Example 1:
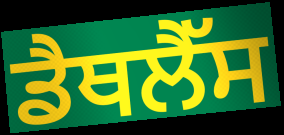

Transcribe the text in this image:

ਡੈਥਲੈੱਸ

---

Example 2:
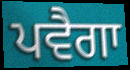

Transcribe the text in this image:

ਪਵੈਗਾ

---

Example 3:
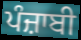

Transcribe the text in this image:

ਪੰਜ਼ਾਬੀ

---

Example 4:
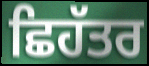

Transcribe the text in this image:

ਛਿਹੱਤਰ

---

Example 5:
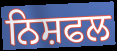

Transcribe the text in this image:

ਨਿਸ਼ਫਲ